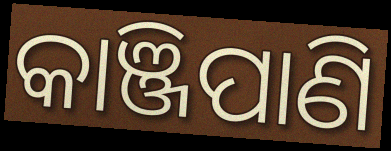
କାଞ୍ଜିପାଣି